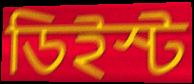
ডিইস্ট